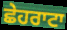
ਛੇਹਰਾਟਾ